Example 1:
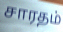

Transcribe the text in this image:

சாரதம்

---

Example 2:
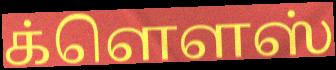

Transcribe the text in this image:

க்ளௌஸ்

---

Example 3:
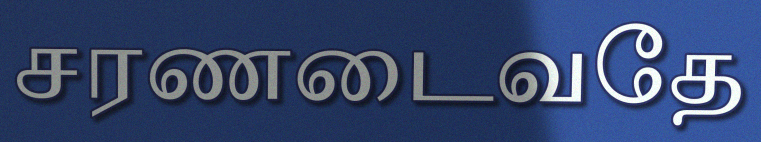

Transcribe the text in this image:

சரணடைவதே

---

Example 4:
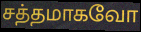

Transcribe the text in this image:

சத்தமாகவோ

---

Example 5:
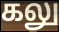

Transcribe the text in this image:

கலு